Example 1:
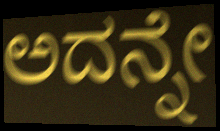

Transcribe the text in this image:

ಅದನ್ನೇ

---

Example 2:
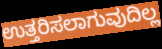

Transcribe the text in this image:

ಉತ್ತರಿಸಲಾಗುವುದಿಲ್ಲ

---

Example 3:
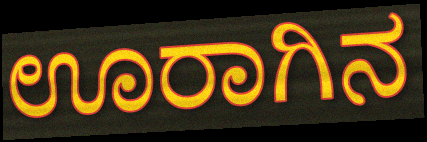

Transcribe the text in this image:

ಊರಾಗಿನ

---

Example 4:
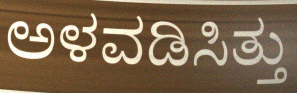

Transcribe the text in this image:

ಅಳವಡಿಸಿತ್ತು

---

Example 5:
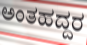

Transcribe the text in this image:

ಅಂತಹದ್ದರ